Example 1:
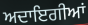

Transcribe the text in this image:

ਅਦਾਇਗੀਆਂ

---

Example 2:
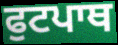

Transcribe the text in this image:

ਫੁਟਪਾਥ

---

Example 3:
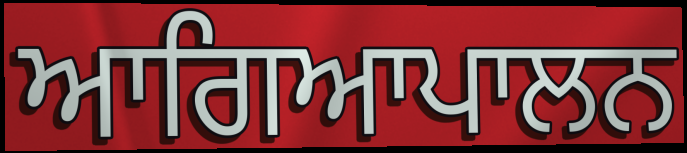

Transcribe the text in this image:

ਆਗਿਆਪਾਲਨ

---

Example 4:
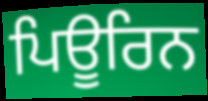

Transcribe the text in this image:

ਪਿਊਰਿਨ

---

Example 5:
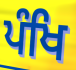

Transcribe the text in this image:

ਪੰਖਿ